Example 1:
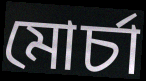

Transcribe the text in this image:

মোর্চা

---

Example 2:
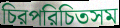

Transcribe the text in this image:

চিরপরিচিতসম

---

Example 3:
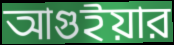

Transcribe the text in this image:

আগুইয়ার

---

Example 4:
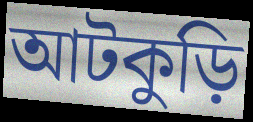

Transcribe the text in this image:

আটকুড়ি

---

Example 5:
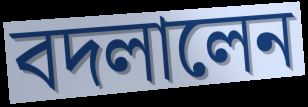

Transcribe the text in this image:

বদলালেন